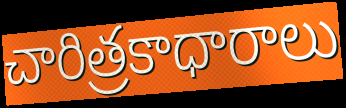
చారిత్రకాధారాలు